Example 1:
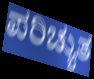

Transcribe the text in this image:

ಪರಿಚ್ಯುತ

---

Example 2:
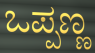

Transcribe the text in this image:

ಒಪ್ಪಣ್ಣ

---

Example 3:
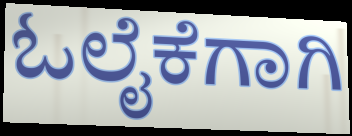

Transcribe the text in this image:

ಓಲೈಕೆಗಾಗಿ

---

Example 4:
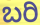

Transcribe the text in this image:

ಬರಿ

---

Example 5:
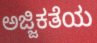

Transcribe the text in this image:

ಅಜ್ಜಿಕತೆಯ